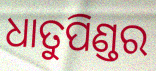
ଧାତୁପିଣ୍ଡର